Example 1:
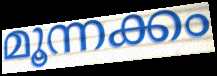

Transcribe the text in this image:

മൂന്നക്കം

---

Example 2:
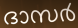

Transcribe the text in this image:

ദാസർ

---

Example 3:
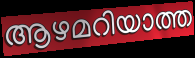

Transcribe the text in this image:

ആഴമറിയാത്ത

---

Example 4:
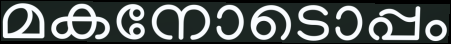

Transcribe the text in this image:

മകനോടൊപ്പം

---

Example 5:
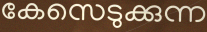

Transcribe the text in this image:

കേസെടുക്കുന്ന